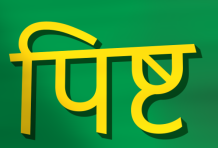
पिष्ट